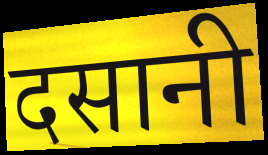
दसानी